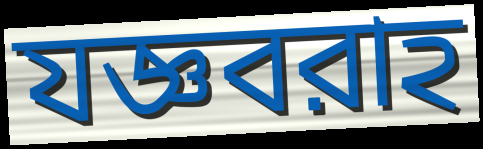
যজ্ঞবরাহ